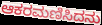
ಆಕರಮಣಿಸಿದನು